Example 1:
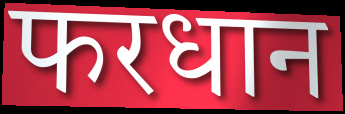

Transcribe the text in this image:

फरधान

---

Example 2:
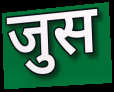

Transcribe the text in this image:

जुस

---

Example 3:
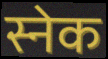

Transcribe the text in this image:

स्‍नेक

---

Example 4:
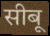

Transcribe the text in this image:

सीबू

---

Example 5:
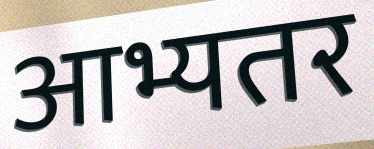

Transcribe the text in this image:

आभ्यतर